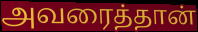
அவரைத்தான்